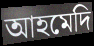
আহমেদি